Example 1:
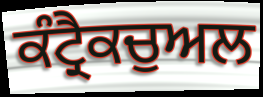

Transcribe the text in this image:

ਕੰਟ੍ਰੈਕਚੁਅਲ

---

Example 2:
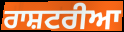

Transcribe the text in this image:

ਰਾਸ਼ਟਰੀਆ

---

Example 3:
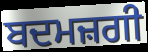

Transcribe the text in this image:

ਬਦਮਜ਼ਗੀ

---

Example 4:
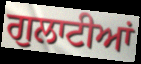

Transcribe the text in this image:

ਗੁਲਾਟੀਆਂ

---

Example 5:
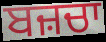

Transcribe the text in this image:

ਬਜ਼ਚਾ